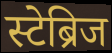
स्टेब्रिज